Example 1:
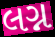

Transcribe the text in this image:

લગ્ન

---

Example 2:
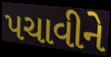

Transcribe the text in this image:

પચાવીને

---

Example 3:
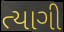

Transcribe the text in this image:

ત્યાગી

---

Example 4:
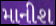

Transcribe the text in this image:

માનીશ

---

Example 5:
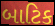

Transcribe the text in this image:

બાટિક